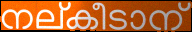
നല്കീടാന്